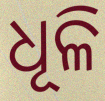
ଧୂଳି